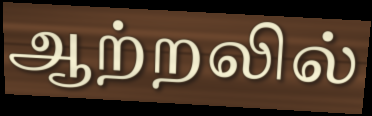
ஆற்றலில்